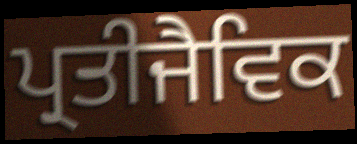
ਪ੍ਰਤੀਜੈਵਿਕ